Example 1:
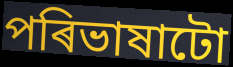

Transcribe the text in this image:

পৰিভাষাটো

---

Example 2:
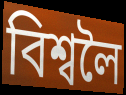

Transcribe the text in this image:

বিশ্বলৈ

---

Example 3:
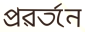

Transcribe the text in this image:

প্ৰৱৰ্তনে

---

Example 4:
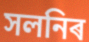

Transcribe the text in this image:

সলনিৰ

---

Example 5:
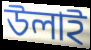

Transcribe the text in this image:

উলাই